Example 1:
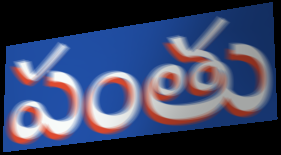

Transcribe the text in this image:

పంతు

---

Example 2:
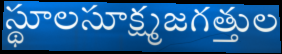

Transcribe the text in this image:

స్థూలసూక్ష్మజగత్తుల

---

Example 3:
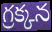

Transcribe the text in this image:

గ్రక్కన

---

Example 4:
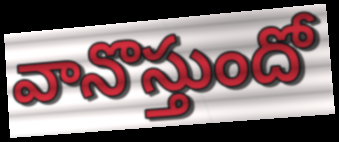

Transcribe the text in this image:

వానొస్తుందో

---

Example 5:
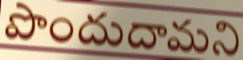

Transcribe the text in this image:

పొందుదామని